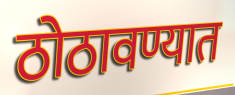
ठोठावण्यात